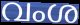
വംശ